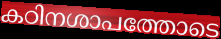
കഠിനശാപത്തോടെ